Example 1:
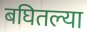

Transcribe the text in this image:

बघितल्या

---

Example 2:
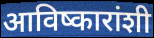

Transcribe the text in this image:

आविष्कारांशी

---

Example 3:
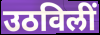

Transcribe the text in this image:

उठविलीं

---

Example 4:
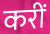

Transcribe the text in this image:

करीं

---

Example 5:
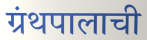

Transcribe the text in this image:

ग्रंथपालाची